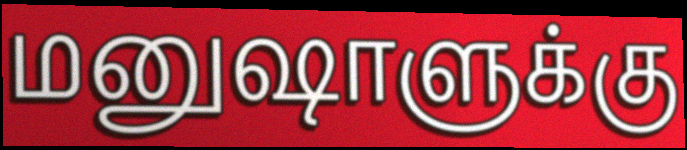
மனுஷாளுக்கு